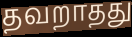
தவறாதது